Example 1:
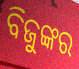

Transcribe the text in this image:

ବିଜୁଙ୍କର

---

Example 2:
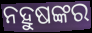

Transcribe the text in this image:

ନହୁଷଙ୍କର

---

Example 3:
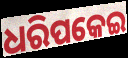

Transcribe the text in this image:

ଧରିପକେଇ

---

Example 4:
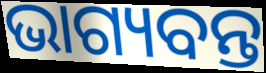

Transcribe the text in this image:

ଭାଗ୍ୟବନ୍ତ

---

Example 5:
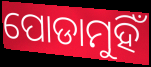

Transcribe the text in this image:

ପୋଡାମୁହିଁ